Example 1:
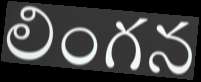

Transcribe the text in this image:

లింగన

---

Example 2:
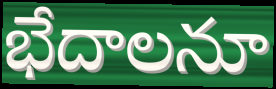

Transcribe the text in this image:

భేదాలనూ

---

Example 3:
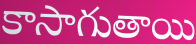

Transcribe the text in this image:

కాసాగుతాయి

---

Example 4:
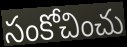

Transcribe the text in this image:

సంకోచించు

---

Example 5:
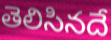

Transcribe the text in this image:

తెలిసినదే